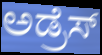
ಅಡ್ರೆಸ್